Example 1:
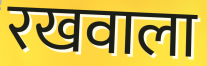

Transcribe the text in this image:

रखवाला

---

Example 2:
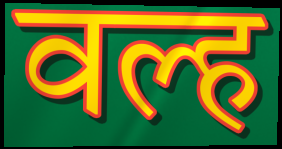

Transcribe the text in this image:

वल्ह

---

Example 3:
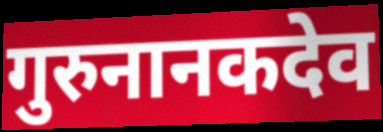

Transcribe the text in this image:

गुरुनानकदेव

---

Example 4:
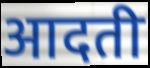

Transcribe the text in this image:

आदती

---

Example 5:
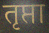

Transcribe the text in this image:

तृप्ता